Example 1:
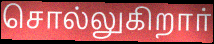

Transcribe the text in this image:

சொல்லுகிறார்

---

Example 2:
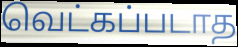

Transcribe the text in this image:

வெட்கப்படாத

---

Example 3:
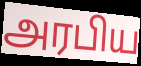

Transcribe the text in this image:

அரபிய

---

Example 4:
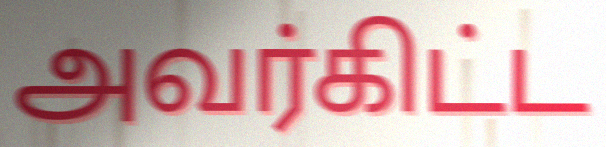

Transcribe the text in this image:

அவர்கிட்ட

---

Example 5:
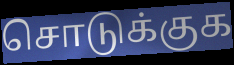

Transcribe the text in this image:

சொடுக்குக